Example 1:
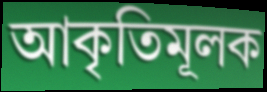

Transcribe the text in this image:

আকৃতিমূলক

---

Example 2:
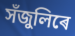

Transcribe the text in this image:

সঁজুলিৰে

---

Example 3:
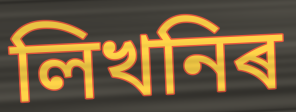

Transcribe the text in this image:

লিখনিৰ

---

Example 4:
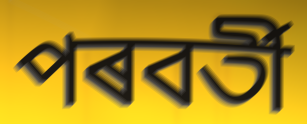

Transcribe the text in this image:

পৰবৰ্তী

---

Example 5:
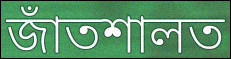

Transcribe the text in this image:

জাঁতশালত